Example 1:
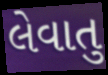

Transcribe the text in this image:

લેવાતુ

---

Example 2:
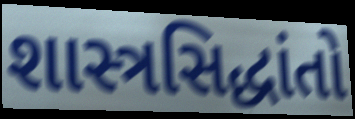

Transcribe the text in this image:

શાસ્ત્રસિદ્ધાંતો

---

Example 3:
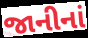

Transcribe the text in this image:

જાનીનાં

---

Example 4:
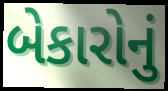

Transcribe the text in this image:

બેકારોનું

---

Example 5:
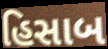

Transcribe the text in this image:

હિસાબ